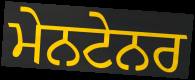
ਮੇਨਟੇਨਰ